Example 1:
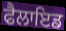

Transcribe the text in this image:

ਫੈਲਾਇਡ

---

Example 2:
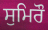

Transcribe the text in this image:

ਸੁਮਿਰੌ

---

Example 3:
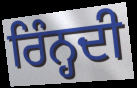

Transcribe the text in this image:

ਰਿੰਨ੍ਹਦੀ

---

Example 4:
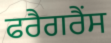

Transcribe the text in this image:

ਫਰੈਗਰੈਂਸ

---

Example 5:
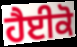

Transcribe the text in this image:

ਹੈਈਕੋ